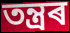
তন্ত্ৰৰ